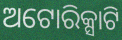
ଅଟୋରିକ୍ସାଟି